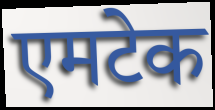
एमटेक